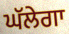
ਘੱਲੇਗਾ